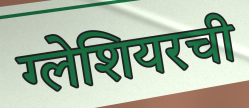
ग्लेशियरची